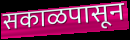
सकाळपासून